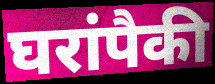
घरांपैकी